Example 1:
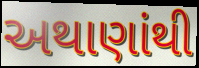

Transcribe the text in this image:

અથાણાંથી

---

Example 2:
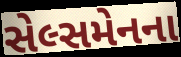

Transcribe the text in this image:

સેલ્સમેનના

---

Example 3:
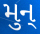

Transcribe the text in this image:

મુન્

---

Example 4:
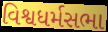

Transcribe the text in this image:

વિશ્વધર્મસભા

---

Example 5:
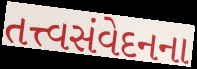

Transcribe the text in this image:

તત્ત્વસંવેદનના